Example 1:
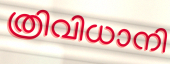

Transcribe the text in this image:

ത്രിവിധാനി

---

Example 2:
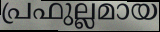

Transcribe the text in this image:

പ്രഫുല്ലമായ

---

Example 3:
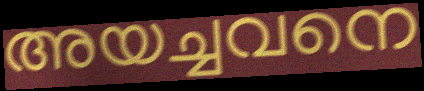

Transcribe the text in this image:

അയച്ചവനെ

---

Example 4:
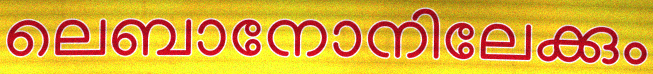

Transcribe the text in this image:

ലെബാനോനിലേക്കും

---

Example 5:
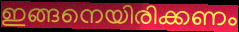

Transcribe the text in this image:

ഇങ്ങനെയിരിക്കണം